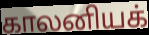
காலனியக்